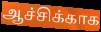
ஆச்சிக்காக